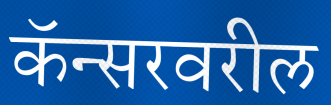
कॅन्सरवरील